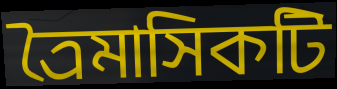
ত্রৈমাসিকটি